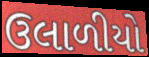
ઉલાળીયો